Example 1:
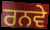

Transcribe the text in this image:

ਰਨਵੇ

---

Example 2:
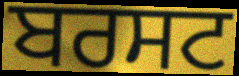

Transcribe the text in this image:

ਬਰਸਟ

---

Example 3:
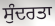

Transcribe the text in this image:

ਸੁੰਦਰਤਾ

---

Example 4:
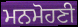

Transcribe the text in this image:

ਮਨਮੋਹਣੀ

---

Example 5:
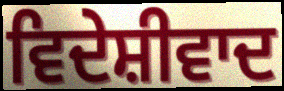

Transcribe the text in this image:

ਵਿਦੇਸ਼ੀਵਾਦ